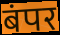
बंपर